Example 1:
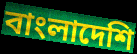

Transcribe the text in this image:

বাংলাদেশি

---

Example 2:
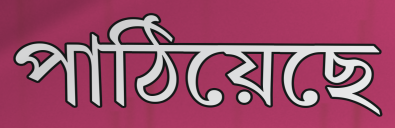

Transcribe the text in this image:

পাঠিয়েছে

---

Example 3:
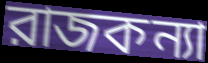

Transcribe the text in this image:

রাজকন্যা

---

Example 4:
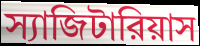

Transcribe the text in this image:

স্যাজিটারিয়াস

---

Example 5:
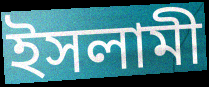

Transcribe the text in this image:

ইসলামী